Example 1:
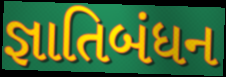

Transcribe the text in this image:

જ્ઞાતિબંધન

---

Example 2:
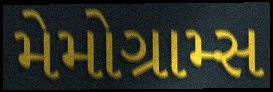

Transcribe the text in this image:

મેમોગ્રામ્સ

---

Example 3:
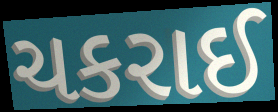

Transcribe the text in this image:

ચકરાઈ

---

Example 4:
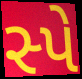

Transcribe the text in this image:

સ્પે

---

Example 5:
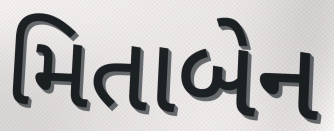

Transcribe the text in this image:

મિતાબેન